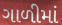
ગાળીમાં